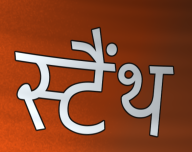
स्टैंथ